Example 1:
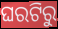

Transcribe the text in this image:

ଘରଟିରୁ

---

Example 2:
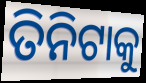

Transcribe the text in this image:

ତିନିଟାକୁ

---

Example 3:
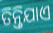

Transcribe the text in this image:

ତିନ୍ତିଯାଏ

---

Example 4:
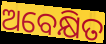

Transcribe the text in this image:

ଅବେକ୍ଷିତ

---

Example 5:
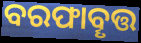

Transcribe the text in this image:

ବରଫାବୄତ୍ତ